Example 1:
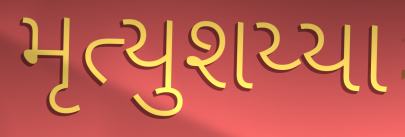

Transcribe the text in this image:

મૃત્યુશય્યા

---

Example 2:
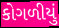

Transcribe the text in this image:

કોગળીયું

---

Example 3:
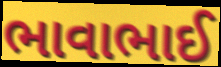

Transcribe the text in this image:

ભાવાભાઈ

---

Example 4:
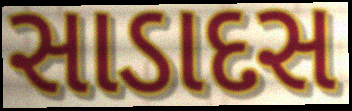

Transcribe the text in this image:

સાડાદસ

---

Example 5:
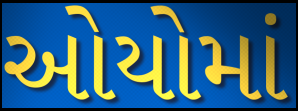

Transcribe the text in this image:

ઓયોમાં